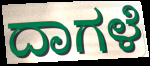
ದಾಗಳೆ